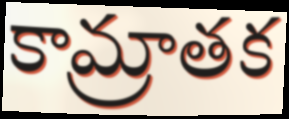
కామ్రాతక